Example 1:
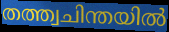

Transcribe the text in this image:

തത്ത്വചിന്തയിൽ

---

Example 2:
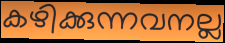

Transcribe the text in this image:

കഴിക്കുന്നവനല്ല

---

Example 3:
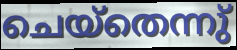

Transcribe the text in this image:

ചെയ്തെന്നു്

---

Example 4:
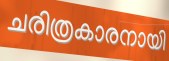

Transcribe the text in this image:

ചരിത്രകാരനായി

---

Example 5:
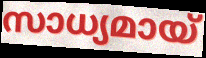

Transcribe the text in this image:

സാധ്യമായ്